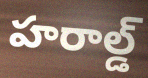
హరాల్డ్